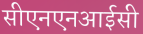
सीएनएनआईसी